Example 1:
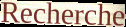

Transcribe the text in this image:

Recherche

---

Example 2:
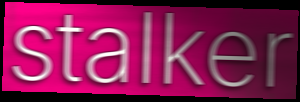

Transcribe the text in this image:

stalker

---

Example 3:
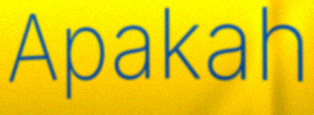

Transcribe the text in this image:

Apakah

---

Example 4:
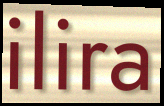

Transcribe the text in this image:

ilira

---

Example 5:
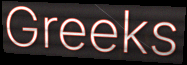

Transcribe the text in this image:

Greeks